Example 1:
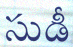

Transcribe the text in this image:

సుడీ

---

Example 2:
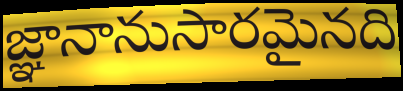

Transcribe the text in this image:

జ్ఞానానుసారమైనది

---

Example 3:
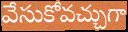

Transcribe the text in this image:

వేసుకోవచ్చుగా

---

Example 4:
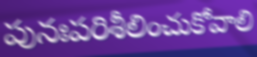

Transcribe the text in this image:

పునఃపరిశీలించుకోవాలి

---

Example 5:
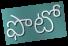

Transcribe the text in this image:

ఫొటో